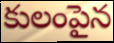
కులంపైన